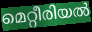
മെറ്റീരിയൽ